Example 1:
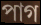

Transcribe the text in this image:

পাগ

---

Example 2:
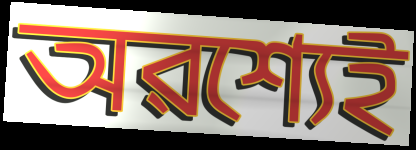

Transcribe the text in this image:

অৱশ্যেই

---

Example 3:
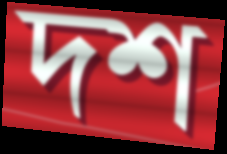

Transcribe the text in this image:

দশ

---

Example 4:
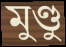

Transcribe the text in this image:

মুণ্ডু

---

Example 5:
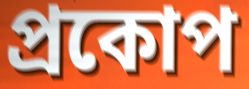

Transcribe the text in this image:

প্ৰকোপ